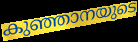
കുഞ്ഞാനയുടെ